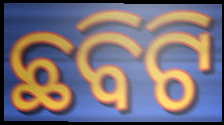
ଛବିଟି